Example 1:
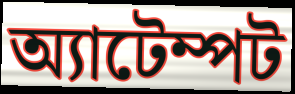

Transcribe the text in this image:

অ্যাটেম্পট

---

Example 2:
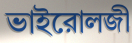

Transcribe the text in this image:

ভাইরোলজী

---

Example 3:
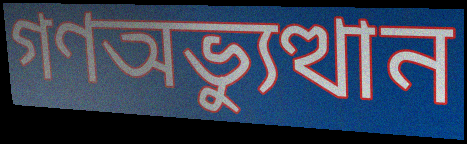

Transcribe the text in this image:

গণঅভ্যুত্থান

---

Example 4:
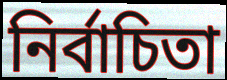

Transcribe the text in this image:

নির্বাচিতা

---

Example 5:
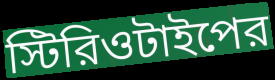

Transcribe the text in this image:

স্টিরিওটাইপের